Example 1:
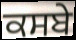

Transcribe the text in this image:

ਕਸਬੇ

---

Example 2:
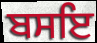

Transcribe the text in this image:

ਬਸਇ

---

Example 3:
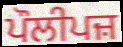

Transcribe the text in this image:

ਪੌਲੀਪਜ਼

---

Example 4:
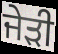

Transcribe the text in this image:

ਜੇੜੀ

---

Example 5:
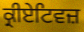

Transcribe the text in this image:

ਕ੍ਰੀਏਟਿਵਜ਼